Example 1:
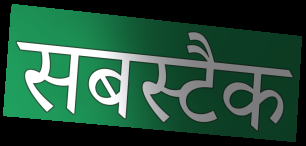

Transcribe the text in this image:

सबस्टैक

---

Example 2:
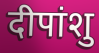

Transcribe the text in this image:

दीपांशु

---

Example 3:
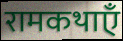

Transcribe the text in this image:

रामकथाएँ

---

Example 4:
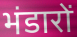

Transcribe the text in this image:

भंडारों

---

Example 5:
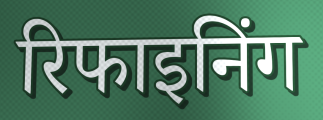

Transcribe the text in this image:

रिफाइनिंग